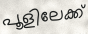
പൂളിലേക്ക്